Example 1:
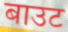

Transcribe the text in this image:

बाउट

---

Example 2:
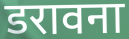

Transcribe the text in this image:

डरावना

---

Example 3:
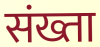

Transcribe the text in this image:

संख्ता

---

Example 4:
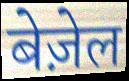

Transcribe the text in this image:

बेज़ेल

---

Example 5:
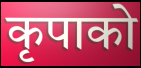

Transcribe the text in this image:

कृपाको